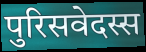
पुरिसवेदस्स